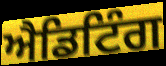
ਐਡਿਟਿੰਗ